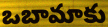
ఒబామాకు